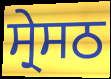
ਸ੍ਰੇਸਠ